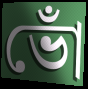
ভোঁ